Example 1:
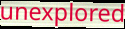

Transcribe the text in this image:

unexplored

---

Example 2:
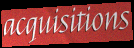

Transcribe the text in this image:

acquisitions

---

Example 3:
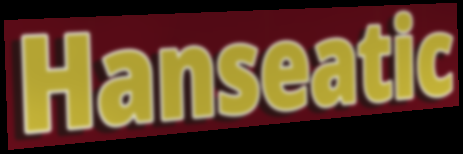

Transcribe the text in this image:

Hanseatic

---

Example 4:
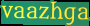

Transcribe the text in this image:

vaazhga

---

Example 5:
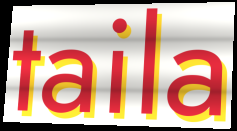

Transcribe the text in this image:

taila